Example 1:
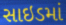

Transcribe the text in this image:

સાઇડમાં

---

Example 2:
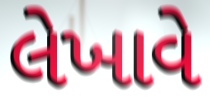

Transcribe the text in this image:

લેખાવે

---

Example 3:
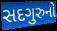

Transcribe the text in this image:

સદગુરુનો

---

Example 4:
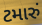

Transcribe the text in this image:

ટમારું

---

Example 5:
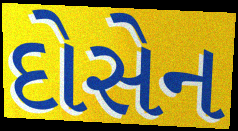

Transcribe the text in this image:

દોસેન